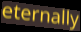
eternally